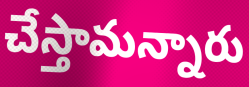
చేస్తామన్నారు